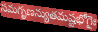
సమగృణన్యుతమష్టభోగైః